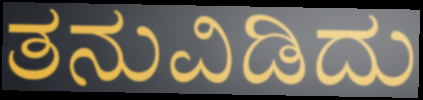
ತನುವಿಡಿದು